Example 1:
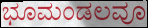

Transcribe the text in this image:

ಭೂಮಂಡಲವೂ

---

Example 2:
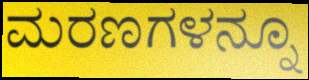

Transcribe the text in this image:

ಮರಣಗಳನ್ನೂ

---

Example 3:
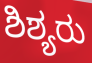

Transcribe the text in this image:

ಶಿಶ್ಯರು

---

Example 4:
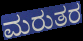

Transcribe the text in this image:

ಮರುತರ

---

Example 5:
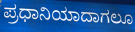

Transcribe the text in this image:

ಪ್ರಧಾನಿಯಾದಾಗಲೂ